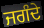
ਜਗੰਦੇ